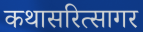
कथासरित्सागर